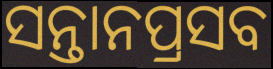
ସନ୍ତାନପ୍ରସବ